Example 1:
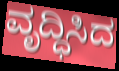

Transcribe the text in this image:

ವೃದ್ಧಿಸಿದ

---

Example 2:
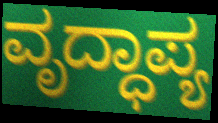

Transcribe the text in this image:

ವೃದ್ಧಾಪ್ಯ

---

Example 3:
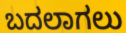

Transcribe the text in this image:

ಬದಲಾಗಲು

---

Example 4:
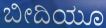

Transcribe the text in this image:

ಬೀದಿಯೂ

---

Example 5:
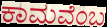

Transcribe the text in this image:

ಕಾಮವೆಂಬ